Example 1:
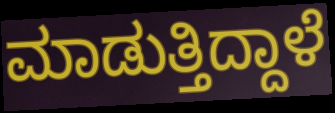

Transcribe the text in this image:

ಮಾಡುತ್ತಿದ್ದಾಳೆ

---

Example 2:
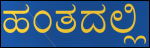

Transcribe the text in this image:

ಹಂತದಲ್ಲಿ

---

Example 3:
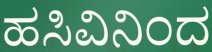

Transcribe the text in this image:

ಹಸಿವಿನಿಂದ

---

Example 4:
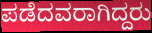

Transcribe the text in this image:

ಪಡೆದವರಾಗಿದ್ದರು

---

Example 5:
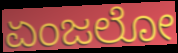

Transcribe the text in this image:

ಏಂಜಲೋ